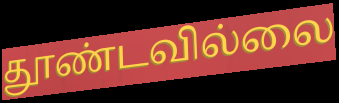
தூண்டவில்லை